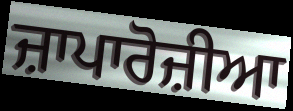
ਜ਼ਾਪਾਰੋਜ਼ੀਆ